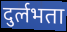
दुर्लभता